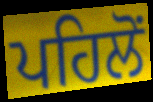
ਪਹਿਲੋਂ